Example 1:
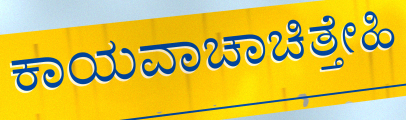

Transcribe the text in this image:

ಕಾಯವಾಚಾಚಿತ್ತೇಹಿ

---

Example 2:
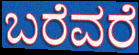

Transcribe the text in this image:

ಬರೆವರೆ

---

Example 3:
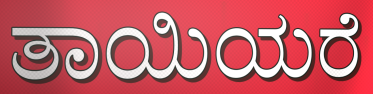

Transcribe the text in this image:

ತಾಯಿಯರೆ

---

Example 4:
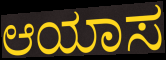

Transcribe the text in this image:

ಆಯಾಸ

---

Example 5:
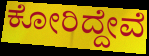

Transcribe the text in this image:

ಕೋರಿದ್ದೇವೆ